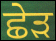
ਛੇੜ